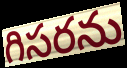
గిసరను